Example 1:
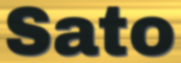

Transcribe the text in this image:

Sato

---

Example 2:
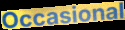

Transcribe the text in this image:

Occasional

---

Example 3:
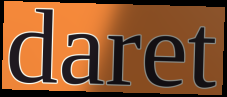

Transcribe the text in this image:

daret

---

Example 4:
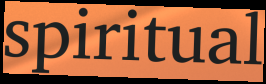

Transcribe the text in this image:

spiritual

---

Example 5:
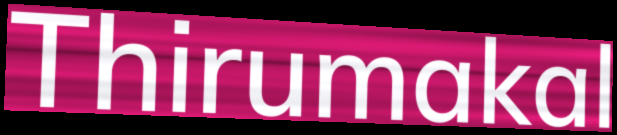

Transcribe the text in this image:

Thirumakal